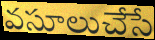
వసూలుచేసే